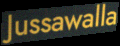
Jussawalla